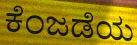
ಕೆಂಜಡೆಯ